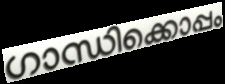
ഗാന്ധിക്കൊപ്പം